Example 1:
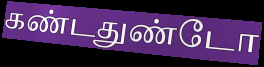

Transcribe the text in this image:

கண்டதுண்டோ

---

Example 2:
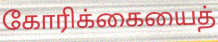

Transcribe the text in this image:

கோரிக்கையைத்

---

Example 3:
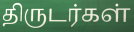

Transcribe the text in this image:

திருடர்கள்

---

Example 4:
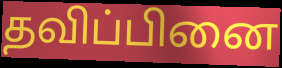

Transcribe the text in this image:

தவிப்பினை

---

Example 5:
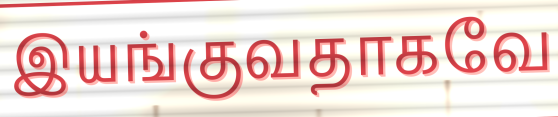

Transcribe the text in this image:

இயங்குவதாகவே